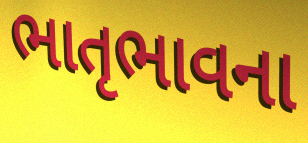
ભાતૃભાવના